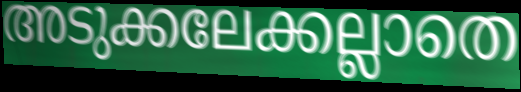
അടുക്കലേക്കല്ലാതെ